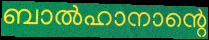
ബാൽഹാനാന്റെ